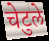
चेटुले